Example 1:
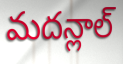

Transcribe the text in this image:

మదన్లాల్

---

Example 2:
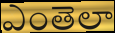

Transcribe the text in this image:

ఎంతెలా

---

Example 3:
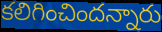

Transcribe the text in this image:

కలిగించిందన్నారు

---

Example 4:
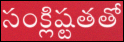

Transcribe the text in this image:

సంక్లిష్టతతో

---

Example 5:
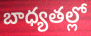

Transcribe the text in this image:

బాధ్యతల్లో